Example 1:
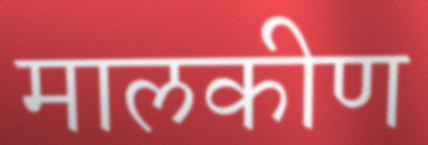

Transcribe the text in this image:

मालकीण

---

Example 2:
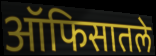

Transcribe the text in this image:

ऑफिसातले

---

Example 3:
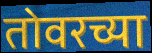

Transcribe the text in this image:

तोवरच्या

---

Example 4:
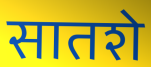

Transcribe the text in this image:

सातशे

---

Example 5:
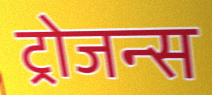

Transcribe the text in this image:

ट्रोजन्स